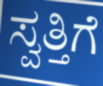
ಸ್ವತ್ತಿಗೆ